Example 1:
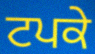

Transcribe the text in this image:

ਟਪਕੇ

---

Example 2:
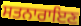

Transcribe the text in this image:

ਸਤਨਾਰਾਇਣ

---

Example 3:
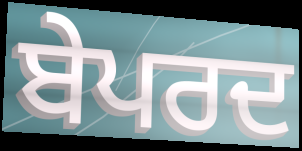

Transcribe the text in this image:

ਬੇਪਰਦ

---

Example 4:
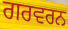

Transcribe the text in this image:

ਗਰਵਰਨ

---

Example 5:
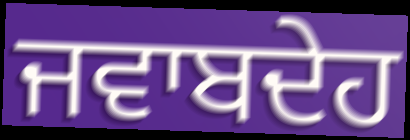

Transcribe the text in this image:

ਜਵਾਬਦੇਹ